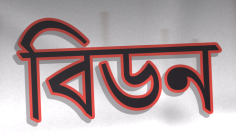
বিডন